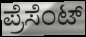
ಪ್ರೆಸೆಂಟ್